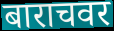
बाराचवर